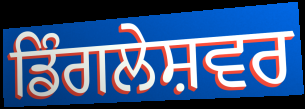
ਡਿੰਗਲੇਸ਼ਵਰ